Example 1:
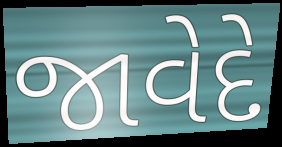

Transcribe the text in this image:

જાવેદે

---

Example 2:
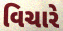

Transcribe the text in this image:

વિચારે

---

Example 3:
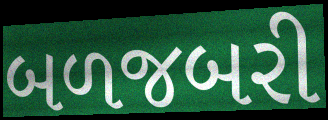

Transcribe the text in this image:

બળજબરી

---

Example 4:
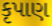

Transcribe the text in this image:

કૃપાણ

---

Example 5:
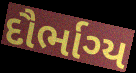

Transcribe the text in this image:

દૌર્ભાગ્ય